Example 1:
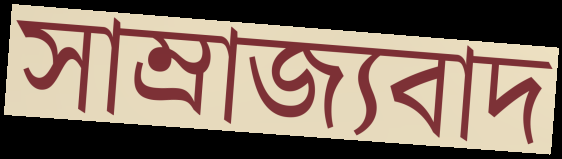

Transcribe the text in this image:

সাম্রাজ্যবাদ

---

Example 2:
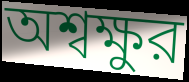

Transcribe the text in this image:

অশ্বক্ষুর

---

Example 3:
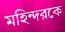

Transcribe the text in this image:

মহিন্দরকে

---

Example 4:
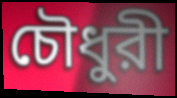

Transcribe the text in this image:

চৌধুরী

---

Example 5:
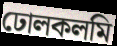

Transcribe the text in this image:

ঢোলকলমি